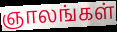
ஞாலங்கள்